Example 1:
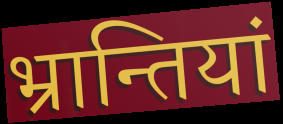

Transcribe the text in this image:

भ्रान्तियां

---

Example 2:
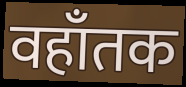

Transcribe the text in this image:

वहाँतक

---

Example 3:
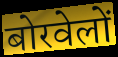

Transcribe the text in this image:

बोरवेलों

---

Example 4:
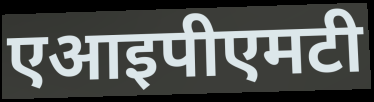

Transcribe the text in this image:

एआइपीएमटी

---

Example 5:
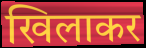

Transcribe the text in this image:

खिलाकर